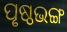
ପୃଷ୍ଠଭଙ୍ଗ